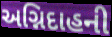
અગ્નિદાહની